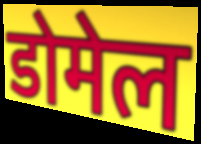
डोमेल